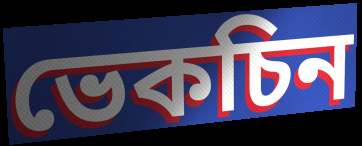
ভেকচিন